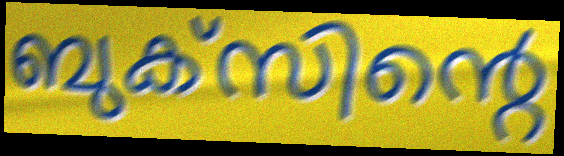
ബുക്‌സിന്റെ